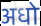
अधो